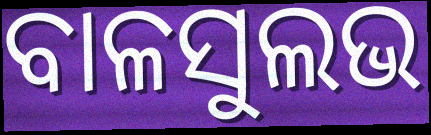
ବାଳସୁଲଭ